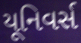
યૂનિવર્સ